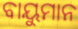
ବାୟୁମାନ